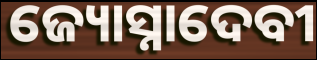
ଜ୍ୟୋସ୍ନାଦେବୀ